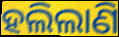
ହଲିଲାଣି